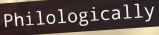
Philologically